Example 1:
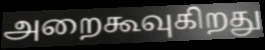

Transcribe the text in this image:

அறைகூவுகிறது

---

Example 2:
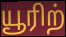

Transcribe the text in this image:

யூரிற்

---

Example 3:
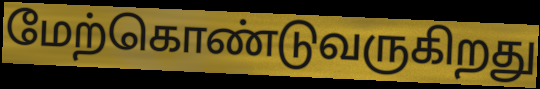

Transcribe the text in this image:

மேற்கொண்டுவருகிறது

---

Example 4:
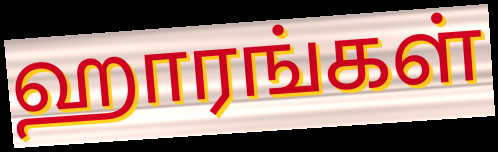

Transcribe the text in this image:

ஹாரங்கள்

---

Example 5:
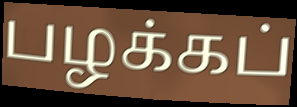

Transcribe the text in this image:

பழக்கப்